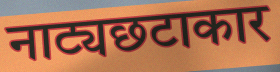
नाट्यछटाकार